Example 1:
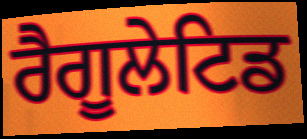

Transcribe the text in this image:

ਰੈਗੂਲੇਟਿਡ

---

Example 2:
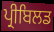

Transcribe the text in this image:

ਪ੍ਰੀਬਿਲਡ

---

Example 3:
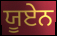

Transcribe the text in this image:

ਯੂਏਨ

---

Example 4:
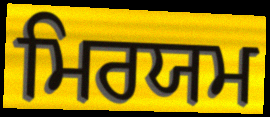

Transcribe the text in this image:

ਮਿਰਯਮ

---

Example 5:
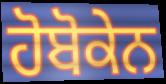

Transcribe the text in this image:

ਹੋਬੋਕੇਨ